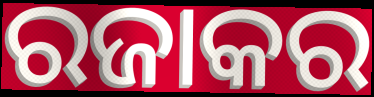
ରଜାକର